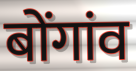
बोंगांव